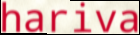
hariva